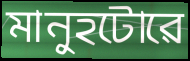
মানুহটোৱে